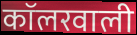
कॉलरवाली